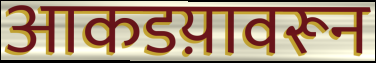
आकडय़ावरून